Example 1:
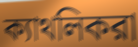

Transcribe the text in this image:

ক্যাথলিকরা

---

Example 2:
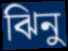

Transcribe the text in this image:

ঝিনু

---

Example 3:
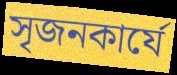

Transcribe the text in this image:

সৃজনকার্যে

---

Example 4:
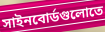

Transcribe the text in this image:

সাইনবোর্ডগুলোতে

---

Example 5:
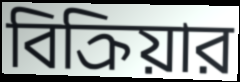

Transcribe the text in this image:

বিক্রিয়ার